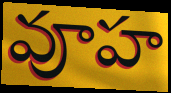
వూహ